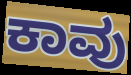
ಕಾವು